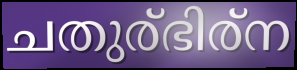
ചതുര്ഭിര്ന